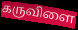
கருவிளை